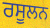
ਰਸੂਲਨ